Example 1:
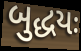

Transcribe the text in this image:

બુદ્ધયઃ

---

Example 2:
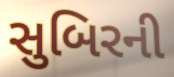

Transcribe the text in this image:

સુબિરની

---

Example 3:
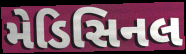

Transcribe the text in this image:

મેડિસિનલ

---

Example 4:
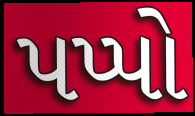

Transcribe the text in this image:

પપ્પો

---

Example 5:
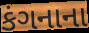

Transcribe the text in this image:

કંગનાના